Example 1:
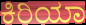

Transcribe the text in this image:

ಕಿರಿಯಾ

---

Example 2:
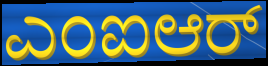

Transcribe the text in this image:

ಎಂಐಆರ್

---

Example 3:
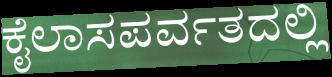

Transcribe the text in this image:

ಕೈಲಾಸಪರ್ವತದಲ್ಲಿ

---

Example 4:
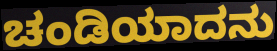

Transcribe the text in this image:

ಚಂಡಿಯಾದನು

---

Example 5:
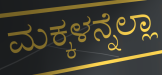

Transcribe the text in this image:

ಮಕ್ಕಳನ್ನೆಲ್ಲಾ